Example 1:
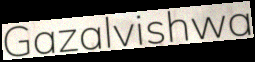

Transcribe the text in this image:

Gazalvishwa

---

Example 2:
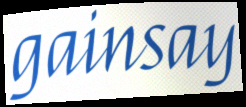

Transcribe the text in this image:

gainsay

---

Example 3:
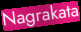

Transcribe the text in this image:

Nagrakata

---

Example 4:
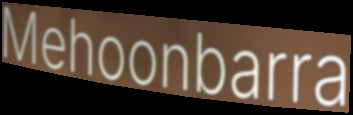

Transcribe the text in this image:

Mehoonbarra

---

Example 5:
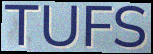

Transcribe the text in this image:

TUFS